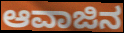
ಆವಾಜಿನ